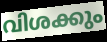
വിശക്കും